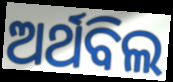
ଅର୍ଥବିଲ